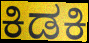
ಕಿಡಕಿ